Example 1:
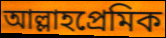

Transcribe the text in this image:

আল্লাহপ্রেমিক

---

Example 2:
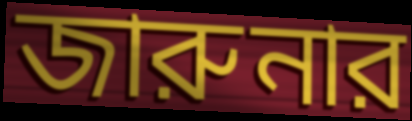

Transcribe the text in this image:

জারুনার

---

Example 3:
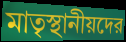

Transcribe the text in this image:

মাতৃস্থানীয়দের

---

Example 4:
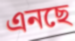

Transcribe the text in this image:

এনছে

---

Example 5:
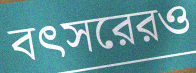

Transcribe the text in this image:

বৎসরেরও